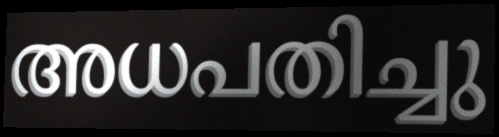
അധപതിച്ചു